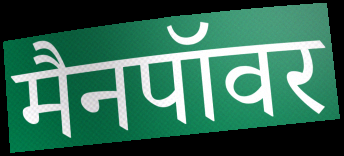
मैनपॉवर